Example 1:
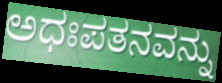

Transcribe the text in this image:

ಅಧಃಪತನವನ್ನು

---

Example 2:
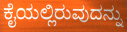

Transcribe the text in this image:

ಕೈಯಲ್ಲಿರುವುದನ್ನು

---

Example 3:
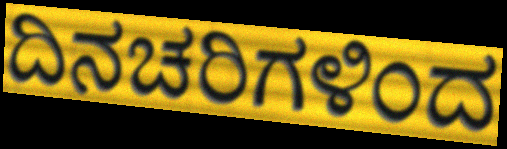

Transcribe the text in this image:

ದಿನಚರಿಗಳಿಂದ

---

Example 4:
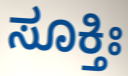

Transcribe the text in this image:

ಸೂಕ್ತಿಃ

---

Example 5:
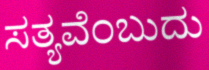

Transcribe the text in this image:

ಸತ್ಯವೆಂಬುದು